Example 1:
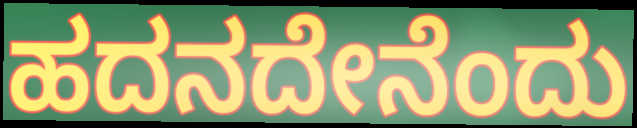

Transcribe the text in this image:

ಹದನದೇನೆಂದು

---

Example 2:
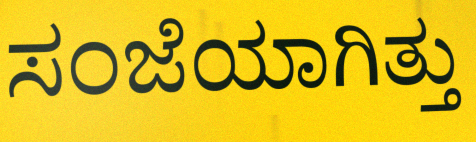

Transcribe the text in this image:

ಸಂಜೆಯಾಗಿತ್ತು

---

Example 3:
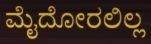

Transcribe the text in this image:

ಮೈದೋರಲಿಲ್ಲ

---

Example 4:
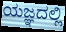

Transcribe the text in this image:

ಯಜ್ಞದಲ್ಲಿ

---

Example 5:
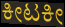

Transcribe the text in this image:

ಕೀಟಕೀ